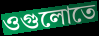
ওগুলোতে